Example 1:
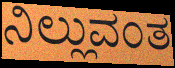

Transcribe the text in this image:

ನಿಲ್ಲುವಂತ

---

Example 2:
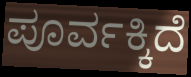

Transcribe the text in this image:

ಪೂರ್ವಕ್ಕಿದೆ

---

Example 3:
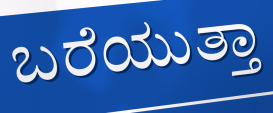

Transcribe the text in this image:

ಬರೆಯುತ್ತಾ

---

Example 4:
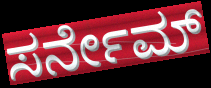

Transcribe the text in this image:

ಸರ್ನೇಮ್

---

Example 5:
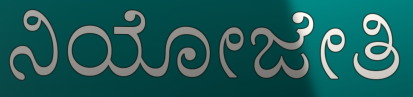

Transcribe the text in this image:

ನಿಯೋಜೇತಿ